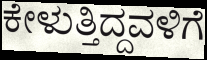
ಕೇಳುತ್ತಿದ್ದವಳಿಗೆ